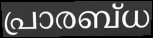
പ്രാരബ്ധ